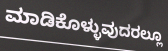
ಮಾಡಿಕೊಳ್ಳುವುದರಲ್ಲೂ